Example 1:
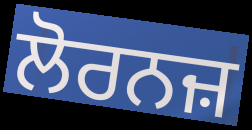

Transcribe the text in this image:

ਲੋਰਨਜ਼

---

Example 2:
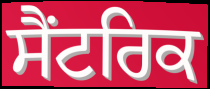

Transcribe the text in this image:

ਸੈਂਟਰਿਕ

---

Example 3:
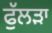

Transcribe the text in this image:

ਫੁੱਲੜਾ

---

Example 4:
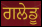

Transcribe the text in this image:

ਗਲੇਡੂ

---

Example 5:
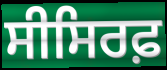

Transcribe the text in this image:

ਸੀਸਿਰਫ਼